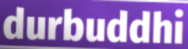
durbuddhi